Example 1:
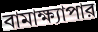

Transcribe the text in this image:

বামাক্ষ্যাপার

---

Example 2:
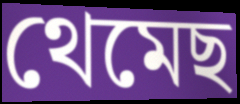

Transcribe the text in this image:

থেমেছ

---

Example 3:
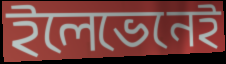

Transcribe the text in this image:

ইলেভেনেই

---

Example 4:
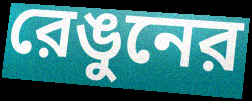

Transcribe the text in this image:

রেঙুনের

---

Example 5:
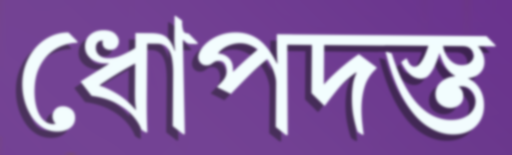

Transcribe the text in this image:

ধোপদস্ত